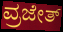
ವ್ರಜೇತ್